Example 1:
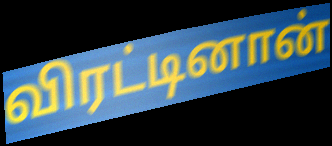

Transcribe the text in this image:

விரட்டினான்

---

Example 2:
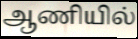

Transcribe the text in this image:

ஆணியில்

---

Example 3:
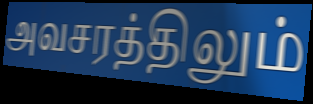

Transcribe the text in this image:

அவசரத்திலும்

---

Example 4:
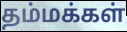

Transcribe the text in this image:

தம்மக்கள்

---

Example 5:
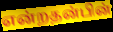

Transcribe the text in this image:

என்றதன்பின்